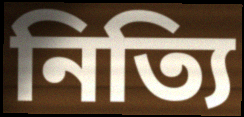
নিত্যি